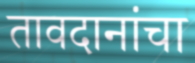
तावदानांचा